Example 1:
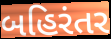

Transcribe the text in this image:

બહિરંતર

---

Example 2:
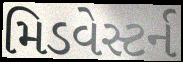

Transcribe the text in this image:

મિડવેસ્ટર્ન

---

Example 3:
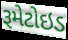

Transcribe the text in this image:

રૂમેટોઇડ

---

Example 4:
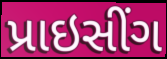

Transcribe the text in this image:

પ્રાઇસીંગ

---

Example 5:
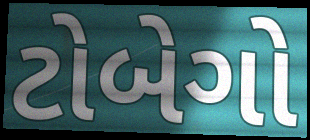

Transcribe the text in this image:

ટોબેગો